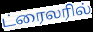
ட்ரைலரில்